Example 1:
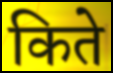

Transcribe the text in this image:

किते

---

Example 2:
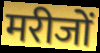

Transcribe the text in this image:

मरीजों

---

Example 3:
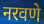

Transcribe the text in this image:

नरवणे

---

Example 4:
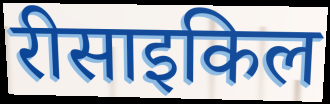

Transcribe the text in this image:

रीसाइकिल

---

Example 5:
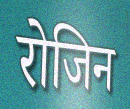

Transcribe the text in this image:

रोजिन